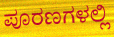
ಪೂರಣಗಳಲ್ಲಿ